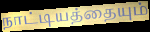
நாட்டியத்தையும்